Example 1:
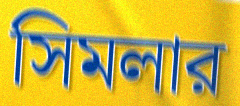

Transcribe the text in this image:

সিমলার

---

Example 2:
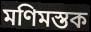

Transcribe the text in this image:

মণিমস্তক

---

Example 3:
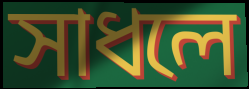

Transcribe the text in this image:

সাধলে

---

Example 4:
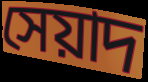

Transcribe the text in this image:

সেয়াদ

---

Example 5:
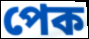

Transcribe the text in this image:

পেক